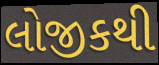
લોજીકથી